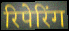
रिपेरिंग